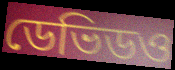
ডেভিডও